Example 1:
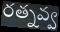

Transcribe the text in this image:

రత్నవ్వ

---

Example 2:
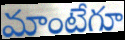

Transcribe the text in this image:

మాంటేగూ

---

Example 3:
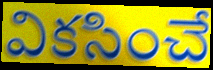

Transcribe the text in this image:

వికసించే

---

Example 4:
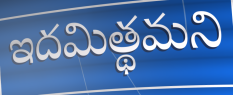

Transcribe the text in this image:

ఇదమిత్థమని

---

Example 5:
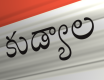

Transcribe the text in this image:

కుడ్యాల